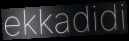
ekkadidi